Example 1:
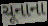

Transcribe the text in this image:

ચૂનાના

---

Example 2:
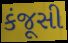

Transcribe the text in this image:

કંજૂસી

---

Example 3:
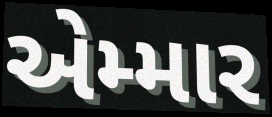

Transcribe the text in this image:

એમ્માર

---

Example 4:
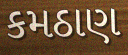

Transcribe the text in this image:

કમઠાણ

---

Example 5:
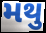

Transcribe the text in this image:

મથુ